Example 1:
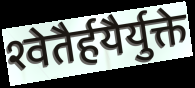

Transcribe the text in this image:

श्वेतैर्हयैर्युक्ते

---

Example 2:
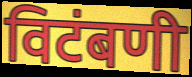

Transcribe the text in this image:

विटंबणी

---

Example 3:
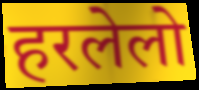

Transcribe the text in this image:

हरलेलो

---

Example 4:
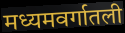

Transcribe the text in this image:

मध्यमवर्गातली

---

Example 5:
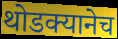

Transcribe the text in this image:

थोडक्यानेच